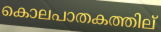
കൊലപാതകത്തില്